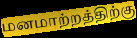
மனமாற்றத்திற்கு